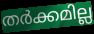
തർക്കമില്ല